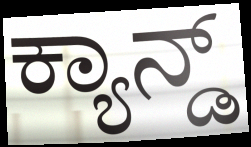
ಕ್ಯಾನ್ಡ್